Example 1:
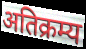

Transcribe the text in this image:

अतिक्रम्य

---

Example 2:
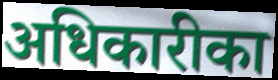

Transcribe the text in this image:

अधिकारीका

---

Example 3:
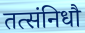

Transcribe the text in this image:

तत्संनिधौ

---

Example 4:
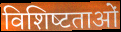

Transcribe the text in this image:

विशिष्‍टताओं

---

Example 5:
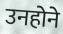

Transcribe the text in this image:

उनहोने